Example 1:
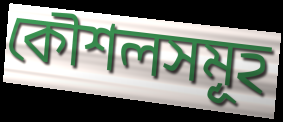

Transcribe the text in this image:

কৌশলসমূহ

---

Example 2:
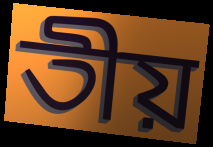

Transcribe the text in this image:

তীয়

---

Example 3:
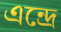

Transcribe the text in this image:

এন্দ্ৰে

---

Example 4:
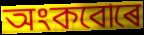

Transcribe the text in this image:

অংকবোৰে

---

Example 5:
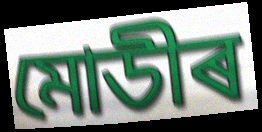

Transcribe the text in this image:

মোডীৰ